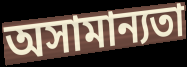
অসামান্যতা